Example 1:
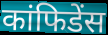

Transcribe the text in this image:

कांफिडेंस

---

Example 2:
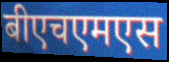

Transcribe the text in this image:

बीएचएमएस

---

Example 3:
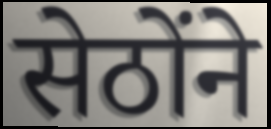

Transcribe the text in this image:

सेठोंने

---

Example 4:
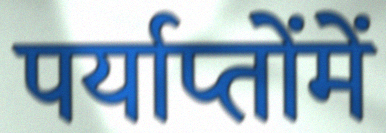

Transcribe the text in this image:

पर्याप्तोंमें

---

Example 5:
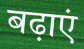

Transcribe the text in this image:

बढ़ाएं